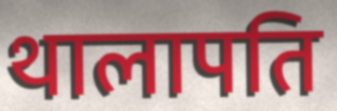
थालापति